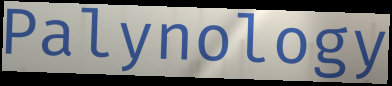
Palynology